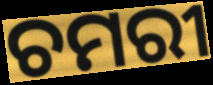
ଚମରୀ